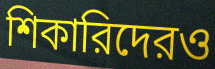
শিকারিদেরও